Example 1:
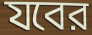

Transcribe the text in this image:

যবের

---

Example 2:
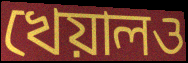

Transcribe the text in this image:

খেয়ালও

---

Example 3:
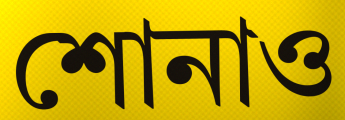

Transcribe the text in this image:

শোনাও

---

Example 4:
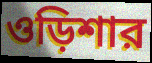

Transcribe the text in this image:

ওড়িশার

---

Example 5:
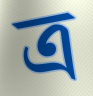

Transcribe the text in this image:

ত্র